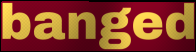
banged